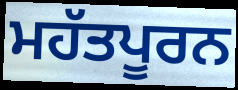
ਮਹੱਤਪੂਰਨ